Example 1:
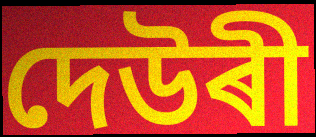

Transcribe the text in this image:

দেউৰী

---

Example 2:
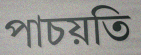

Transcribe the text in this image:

পাচয়তি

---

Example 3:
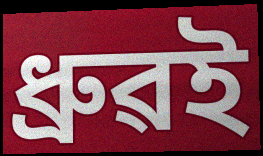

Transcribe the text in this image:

ধ্ৰুৱই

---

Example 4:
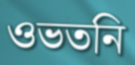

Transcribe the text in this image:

ওভতনি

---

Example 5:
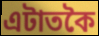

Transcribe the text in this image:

এটাতকৈ